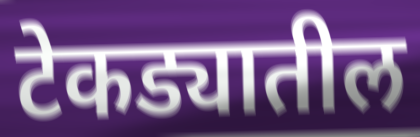
टेकड्यातील